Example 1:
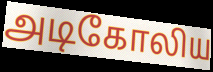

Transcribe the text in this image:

அடிகோலிய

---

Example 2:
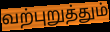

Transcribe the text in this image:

வற்புறுத்தும்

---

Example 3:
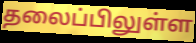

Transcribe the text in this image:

தலைப்பிலுள்ள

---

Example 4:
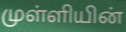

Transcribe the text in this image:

முள்ளியின்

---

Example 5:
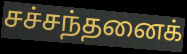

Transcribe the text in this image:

சச்சந்தனைக்